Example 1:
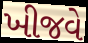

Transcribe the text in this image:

ખીજવે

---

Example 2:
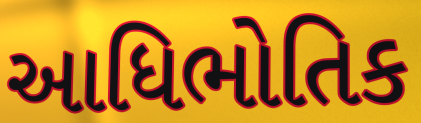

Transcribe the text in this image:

આધિભોતિક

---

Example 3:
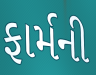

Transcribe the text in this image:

ફાર્મની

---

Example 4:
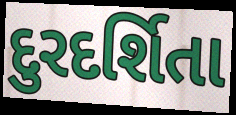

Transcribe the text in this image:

દુરદર્શિતા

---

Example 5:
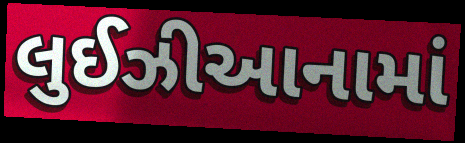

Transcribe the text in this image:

લુઈઝીઆનામાં